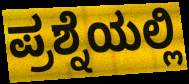
ಪ್ರಶ್ನೆಯಲ್ಲಿ